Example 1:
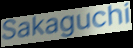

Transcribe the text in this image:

Sakaguchi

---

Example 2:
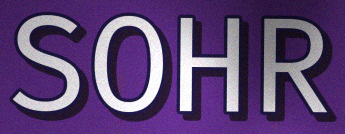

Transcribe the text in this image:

SOHR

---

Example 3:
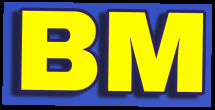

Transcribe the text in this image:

BM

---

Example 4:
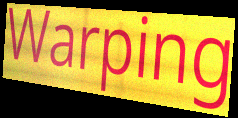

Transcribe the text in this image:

Warping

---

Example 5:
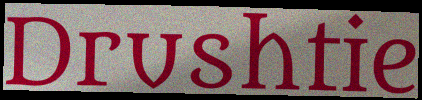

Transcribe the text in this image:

Drushtie